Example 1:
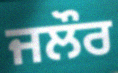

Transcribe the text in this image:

ਜਲੌਰ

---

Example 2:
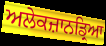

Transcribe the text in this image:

ਅਲੇਕਜ਼ਾਨਡ੍ਰਿਆ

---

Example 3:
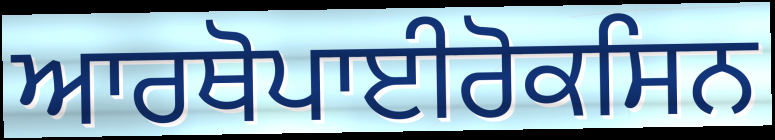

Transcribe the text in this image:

ਆਰਥੋਪਾਈਰੋਕਸਿਨ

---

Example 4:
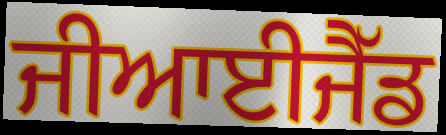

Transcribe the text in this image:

ਜੀਆਈਜੈੱਡ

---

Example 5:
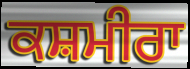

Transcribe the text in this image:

ਕਸ਼ਮੀਰਾ